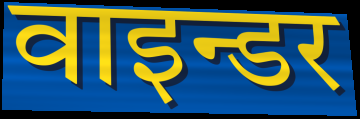
वाइन्डर